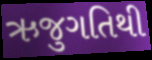
ઋજુગતિથી